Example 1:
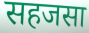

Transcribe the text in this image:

सहजसा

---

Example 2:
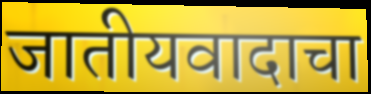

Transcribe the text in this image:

जातीयवादाचा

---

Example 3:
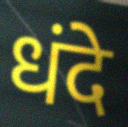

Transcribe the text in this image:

धंदे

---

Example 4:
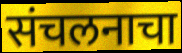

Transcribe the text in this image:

संचलनाचा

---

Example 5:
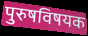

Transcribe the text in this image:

पुरुषविषयक